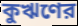
কুঋণের